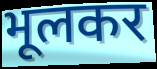
भूलकर